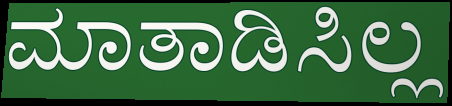
ಮಾತಾಡಿಸಿಲ್ಲ